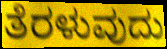
ತೆರಳುವುದು